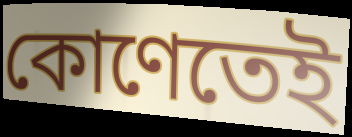
কোণেতেই